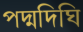
পদ্মদিঘি